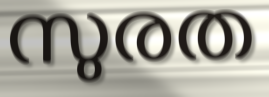
സുരത